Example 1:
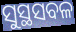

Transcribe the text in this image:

ସୁସ୍ଥସବଳ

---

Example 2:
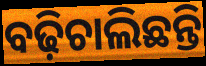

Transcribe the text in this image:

ବଢ଼ିଚାଲିଛନ୍ତି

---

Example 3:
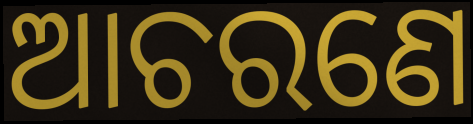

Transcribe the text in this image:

ଆଚରଣେ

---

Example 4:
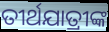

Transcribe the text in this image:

ତୀର୍ଥଯାତ୍ରୀଙ୍କ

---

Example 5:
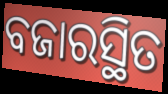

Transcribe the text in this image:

ବଜାରସ୍ଥିତ